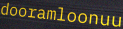
dooramloonuu